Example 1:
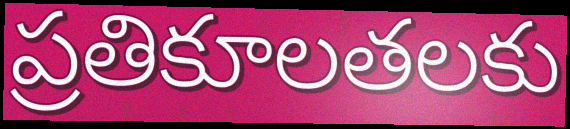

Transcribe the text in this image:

ప్రతికూలతలకు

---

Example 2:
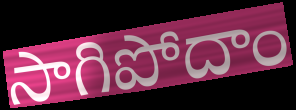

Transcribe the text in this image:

సాగిపోదాం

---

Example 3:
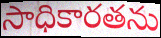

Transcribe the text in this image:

సాధికారతను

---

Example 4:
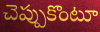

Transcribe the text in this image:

చెప్పుకొంటూ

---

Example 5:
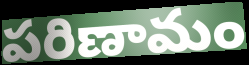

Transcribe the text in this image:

పరిణామం